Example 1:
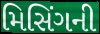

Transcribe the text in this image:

મિસિંગની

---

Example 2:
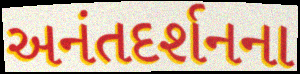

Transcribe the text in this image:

અનંતદર્શનના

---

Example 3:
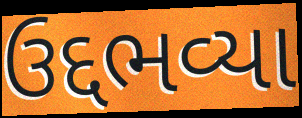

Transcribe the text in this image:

ઉદ્દભવ્યા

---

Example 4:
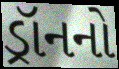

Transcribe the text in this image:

ડ્રૉનનો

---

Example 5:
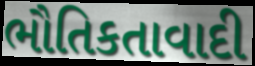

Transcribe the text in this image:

ભૌતિકતાવાદી